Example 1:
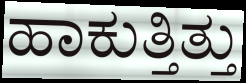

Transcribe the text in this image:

ಹಾಕುತ್ತಿತ್ತು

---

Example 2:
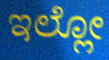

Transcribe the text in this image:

ಇಲ್ಲೋ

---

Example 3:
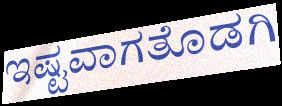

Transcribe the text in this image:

ಇಷ್ಟವಾಗತೊಡಗಿ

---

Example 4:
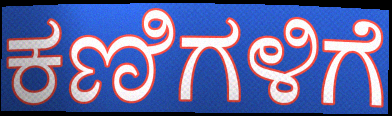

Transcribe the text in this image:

ಕಣಿಗಳಿಗೆ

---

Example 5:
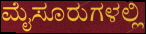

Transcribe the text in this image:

ಮೈಸೂರುಗಳಲ್ಲಿ